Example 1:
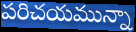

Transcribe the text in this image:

పరిచయమున్నా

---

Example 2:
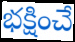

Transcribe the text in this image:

భక్షించే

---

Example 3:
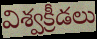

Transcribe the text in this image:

విశ్వక్రీడలు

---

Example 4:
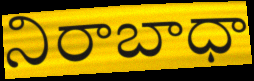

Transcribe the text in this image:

నిరాబాధా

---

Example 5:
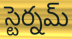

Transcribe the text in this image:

స్టెర్నమ్